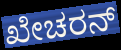
ಖೇಚರನ್